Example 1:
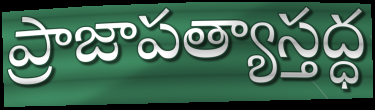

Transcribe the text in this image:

ప్రాజాపత్యాస్తద్ధ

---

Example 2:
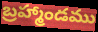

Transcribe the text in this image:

బ్రహ్మాండము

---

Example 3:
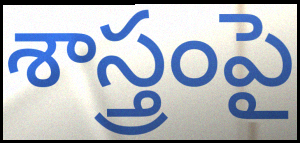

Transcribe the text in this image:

శాస్త్రంపై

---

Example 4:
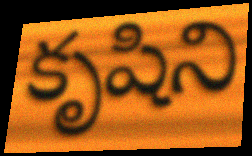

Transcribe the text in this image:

కృషిని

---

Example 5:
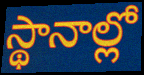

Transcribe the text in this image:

స్థానాల్లో